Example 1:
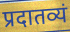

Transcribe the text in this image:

प्रदातव्यं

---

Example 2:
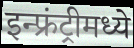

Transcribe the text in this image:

इन्फ्रंट्रीमध्ये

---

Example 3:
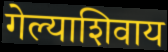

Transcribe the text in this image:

गेल्याशिवाय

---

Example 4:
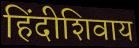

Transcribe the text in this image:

हिंदीशिवाय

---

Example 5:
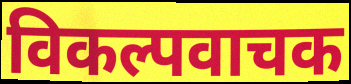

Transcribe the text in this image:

विकल्पवाचक